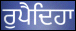
ਰੁਪੈਦਿਹਾ